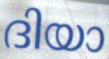
ദിയാ